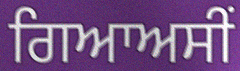
ਗਿਆਅਸੀਂ